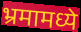
भ्रमामध्ये